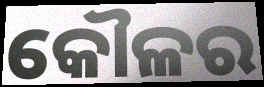
କୌଳର